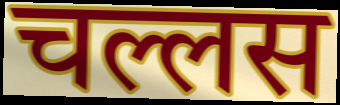
चल्लस